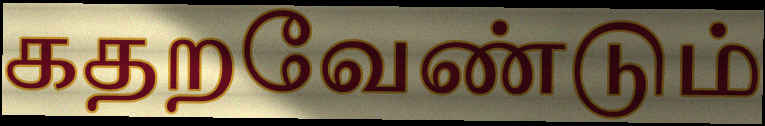
கதறவேண்டும்